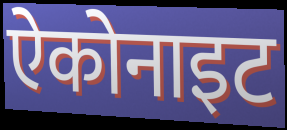
ऐकोनाइट